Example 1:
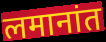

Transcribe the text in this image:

लमानांत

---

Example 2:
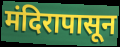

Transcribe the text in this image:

मंदिरापासून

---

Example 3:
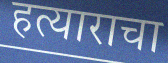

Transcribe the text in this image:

हत्याराचा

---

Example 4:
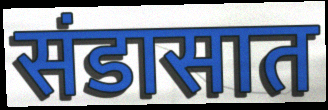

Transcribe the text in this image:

संडासात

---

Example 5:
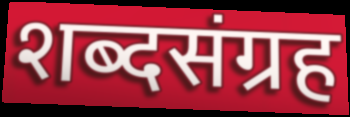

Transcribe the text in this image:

शब्दसंग्रह